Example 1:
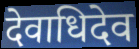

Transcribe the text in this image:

देवाधिदेव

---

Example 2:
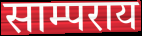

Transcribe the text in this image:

साम्पराय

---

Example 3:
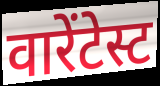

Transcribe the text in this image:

वारेंटेस्ट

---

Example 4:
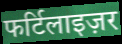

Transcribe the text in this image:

फर्टिलाइज़र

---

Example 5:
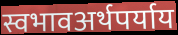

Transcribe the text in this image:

स्वभावअर्थपर्याय